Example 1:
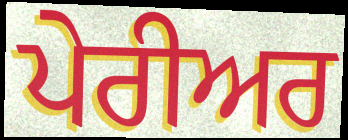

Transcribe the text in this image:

ਪੇਰੀਅਰ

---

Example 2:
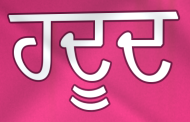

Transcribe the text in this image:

ਹਦੂਦ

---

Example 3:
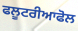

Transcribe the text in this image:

ਫਲੂਟਰੀਆਫੋਲ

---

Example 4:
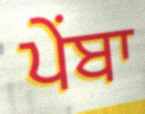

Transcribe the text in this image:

ਪੇਂਬਾ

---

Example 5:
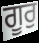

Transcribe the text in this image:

ਗੂਰੁ